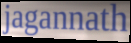
jagannath